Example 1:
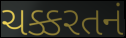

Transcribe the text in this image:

ચક્કરતનં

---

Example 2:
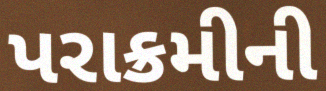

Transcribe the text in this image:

પરાક્રમીની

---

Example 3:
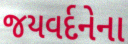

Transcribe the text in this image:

જયવર્દનેના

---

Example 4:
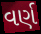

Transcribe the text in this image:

વર્ણ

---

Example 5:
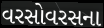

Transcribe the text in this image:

વરસોવરસના